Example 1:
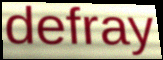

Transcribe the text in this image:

defray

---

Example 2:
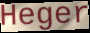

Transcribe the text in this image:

Heger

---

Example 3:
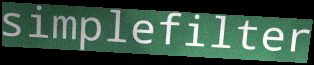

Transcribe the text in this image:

simplefilter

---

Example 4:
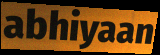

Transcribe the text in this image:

abhiyaan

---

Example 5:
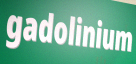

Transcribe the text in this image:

gadolinium